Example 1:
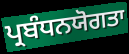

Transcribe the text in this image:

ਪ੍ਰਬੰਧਨਯੋਗਤਾ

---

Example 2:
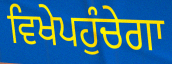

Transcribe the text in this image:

ਵਿਖੇਪਹੁੰਚੇਗਾ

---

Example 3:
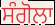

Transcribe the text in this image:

ਸੰਗੋਲਾ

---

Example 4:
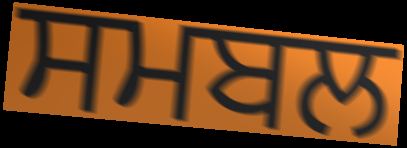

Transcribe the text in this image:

ਸਮਬਲ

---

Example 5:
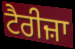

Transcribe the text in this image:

ਟੈਰੀਜ਼ਾ